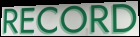
RECORD